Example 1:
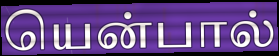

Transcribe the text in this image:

யென்பால்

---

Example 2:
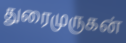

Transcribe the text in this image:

துரைமுருகன்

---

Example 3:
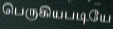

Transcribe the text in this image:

பெருகியபடியே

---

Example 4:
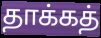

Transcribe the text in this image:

தாக்கத்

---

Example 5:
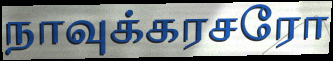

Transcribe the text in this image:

நாவுக்கரசரோ